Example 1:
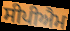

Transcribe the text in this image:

ਸੀਪੀਐਮ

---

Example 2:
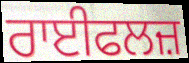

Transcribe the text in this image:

ਰਾਈਫਲਜ਼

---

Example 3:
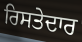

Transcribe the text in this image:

ਰਿਸਤੇਦਾਰ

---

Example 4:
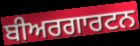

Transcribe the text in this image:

ਬੀਅਰਗਾਰਟਨ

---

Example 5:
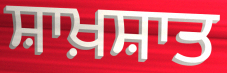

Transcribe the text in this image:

ਸ਼ਾਖ਼ਸ਼ਾਤ